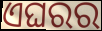
ଏଘରର